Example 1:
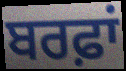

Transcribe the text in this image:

ਬਰਫ਼ਾਂ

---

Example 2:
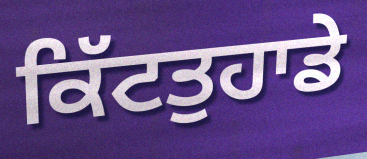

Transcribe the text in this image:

ਕਿੱਟਤੁਹਾਡੇ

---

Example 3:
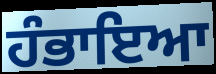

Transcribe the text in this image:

ਹੰਭਾਇਆ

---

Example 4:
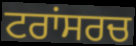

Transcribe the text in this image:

ਟਰਾਂਸਰਚ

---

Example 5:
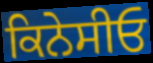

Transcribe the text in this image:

ਕਿਨੇਸੀਓ